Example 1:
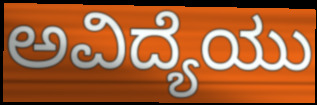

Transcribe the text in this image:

ಅವಿದ್ಯೆಯು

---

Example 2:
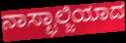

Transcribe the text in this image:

ನಾಸ್ಟಾಲ್ಜಿಯಾದ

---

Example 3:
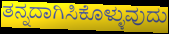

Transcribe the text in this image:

ತನ್ನದಾಗಿಸಿಕೊಳ್ಳುವುದು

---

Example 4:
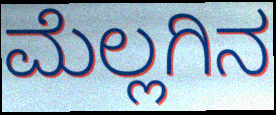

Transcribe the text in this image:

ಮೆಲ್ಲಗಿನ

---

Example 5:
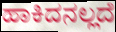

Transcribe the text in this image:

ಹಾಕಿದನಲ್ಲದೆ